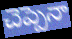
చెప్పెనా